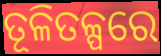
ତୂଳିତଳ୍ପରେ